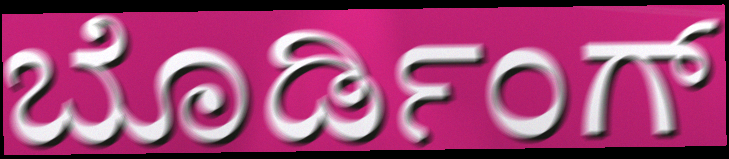
ಬೊರ್ಡಿಂಗ್